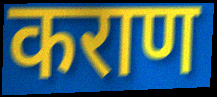
कराण